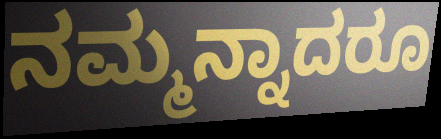
ನಮ್ಮನ್ನಾದರೂ